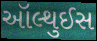
ઑલ્થુઈસ